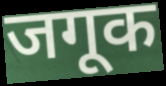
जगूक